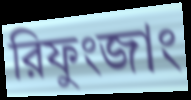
রিফুংজাং